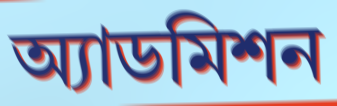
অ্যাডমিশন